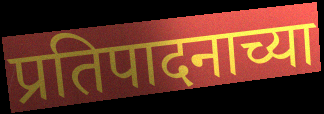
प्रतिपादनाच्या